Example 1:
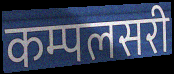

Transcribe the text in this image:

कम्पलसरी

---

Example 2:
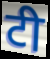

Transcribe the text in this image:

टी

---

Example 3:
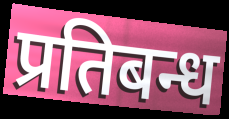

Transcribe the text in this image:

प्रतिबन्ध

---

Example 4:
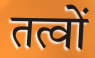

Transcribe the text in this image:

तत्वों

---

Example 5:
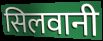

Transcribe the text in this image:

सिलवानी